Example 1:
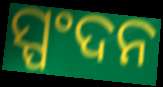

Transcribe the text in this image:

ସ୍ପଂଦନ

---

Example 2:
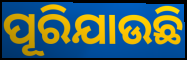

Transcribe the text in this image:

ପୂରିଯାଉଛି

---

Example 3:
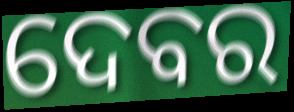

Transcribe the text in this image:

ଦେବର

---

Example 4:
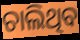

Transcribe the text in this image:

ଚାଲିଥିବ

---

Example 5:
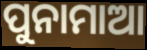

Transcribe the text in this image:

ପୁନାମାଆ